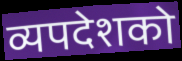
व्यपदेशको